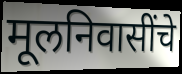
मूलनिवासींचे